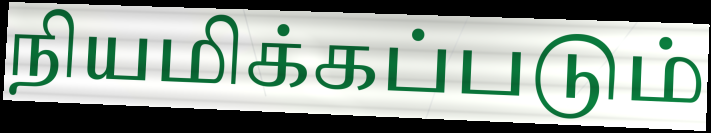
நியமிக்கப்படும்